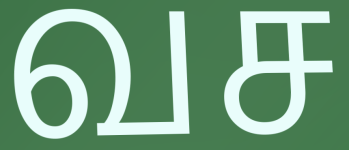
வச